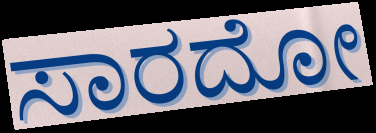
ಸಾರದೋ